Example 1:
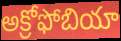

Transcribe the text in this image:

అక్రోఫోబియా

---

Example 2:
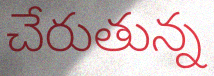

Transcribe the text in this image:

చేరుతున్న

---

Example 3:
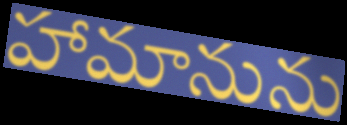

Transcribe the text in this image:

హామానును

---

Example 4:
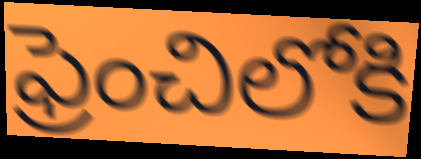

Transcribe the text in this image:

ఫ్రెంచిలోకి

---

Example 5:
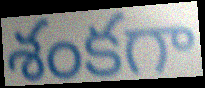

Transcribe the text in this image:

శంకగా